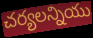
చర్యలన్నియు